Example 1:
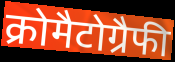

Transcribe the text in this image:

क्रोमैटोग्रैफी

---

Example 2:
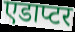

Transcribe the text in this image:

एडाप्टर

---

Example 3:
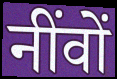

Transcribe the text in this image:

नींवों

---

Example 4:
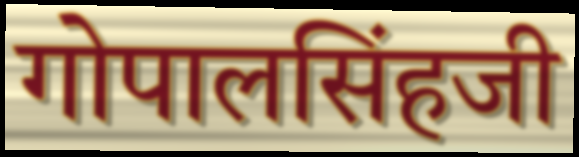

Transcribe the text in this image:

गोपालसिंहजी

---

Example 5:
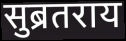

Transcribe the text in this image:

सुब्रतराय